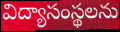
విద్యాసంస్థలను